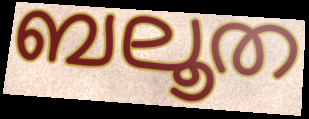
ബലൂത